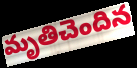
మృతిచెందిన